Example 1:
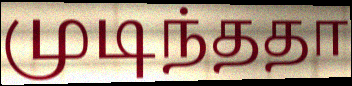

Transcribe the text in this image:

முடிந்ததா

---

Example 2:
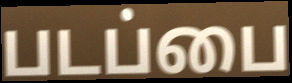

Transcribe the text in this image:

படப்பை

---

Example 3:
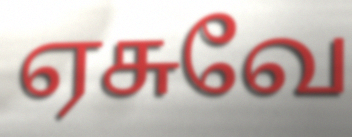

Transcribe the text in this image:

ஏசுவே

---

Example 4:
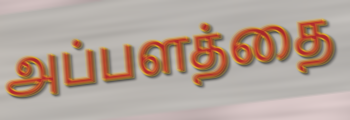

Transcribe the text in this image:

அப்பளத்தை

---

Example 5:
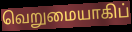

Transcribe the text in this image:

வெறுமையாகிப்